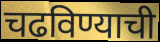
चढविण्याची